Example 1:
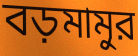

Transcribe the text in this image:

বড়মামুর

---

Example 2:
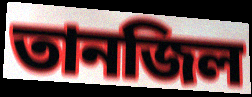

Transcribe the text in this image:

তানজিল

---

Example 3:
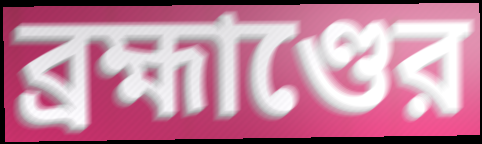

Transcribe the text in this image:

ব্রহ্মাণ্ডের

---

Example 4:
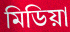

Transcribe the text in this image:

মিডিয়া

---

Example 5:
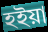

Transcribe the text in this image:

হইয়া